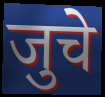
जुचे